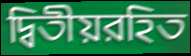
দ্বিতীয়রহিত